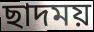
ছাদময়